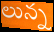
లున్న